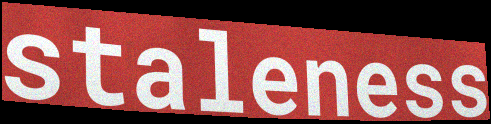
staleness